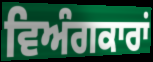
ਵਿਅੰਗਕਾਰਾਂ